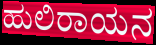
ಹುಲಿರಾಯನ